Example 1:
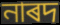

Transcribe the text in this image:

নাৰদ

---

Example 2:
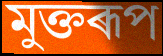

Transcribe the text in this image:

মুক্তৰূপ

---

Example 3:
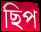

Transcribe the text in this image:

ছিপ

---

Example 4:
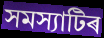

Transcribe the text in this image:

সমস্যাটিৰ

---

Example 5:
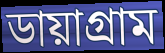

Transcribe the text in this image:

ডায়াগ্ৰাম